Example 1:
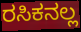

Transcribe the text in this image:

ರಸಿಕನಲ್ಲ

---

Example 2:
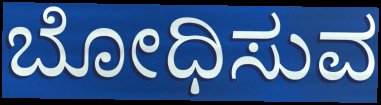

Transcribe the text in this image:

ಬೋಧಿಸುವ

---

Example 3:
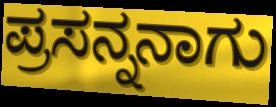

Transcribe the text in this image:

ಪ್ರಸನ್ನನಾಗು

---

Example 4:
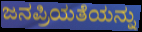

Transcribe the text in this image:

ಜನಪ್ರಿಯತೆಯನ್ನು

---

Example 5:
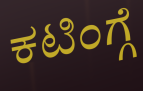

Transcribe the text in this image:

ಕಟಿಂಗ್ಗೆ